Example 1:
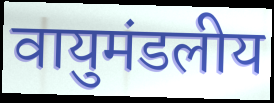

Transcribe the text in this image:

वायुमंडलीय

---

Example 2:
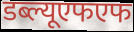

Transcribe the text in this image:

डब्ल्यूएफएफ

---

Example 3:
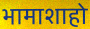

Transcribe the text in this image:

भामाशाहो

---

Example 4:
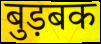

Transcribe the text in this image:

बुड़बक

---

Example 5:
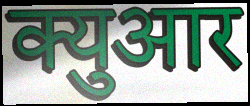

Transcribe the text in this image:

क्युआर